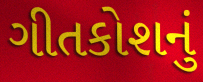
ગીતકોશનું